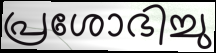
പ്രശോഭിച്ചു